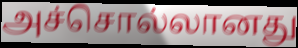
அச்சொல்லானது